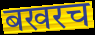
बखरच